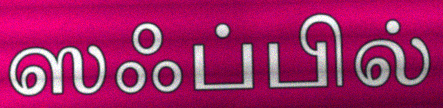
ஸஃப்பில்